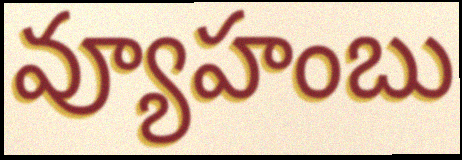
వ్యూహంబు